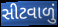
સીટવાળું